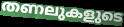
തണലുകളുടെ